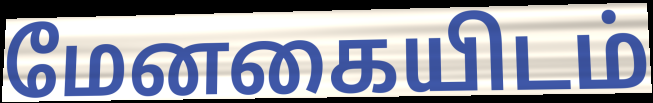
மேனகையிடம்